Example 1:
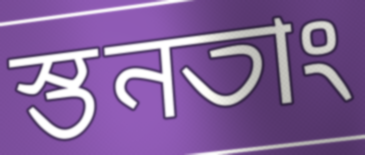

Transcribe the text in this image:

স্তনতাং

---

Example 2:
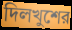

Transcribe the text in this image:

দিলখুশের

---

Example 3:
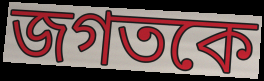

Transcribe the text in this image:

জগতকে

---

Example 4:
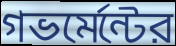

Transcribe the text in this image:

গভর্মেন্টের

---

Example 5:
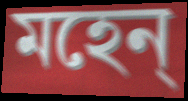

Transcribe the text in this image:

মহেন্